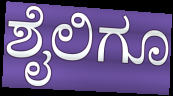
ಶೈಲಿಗೂ